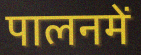
पालनमें